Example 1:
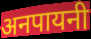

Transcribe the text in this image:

अनपायनी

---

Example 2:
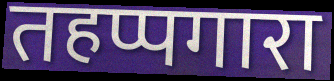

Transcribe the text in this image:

तहप्पगारा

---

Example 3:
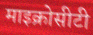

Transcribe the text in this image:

माइक्रोसीटी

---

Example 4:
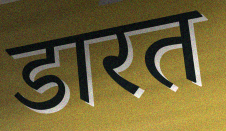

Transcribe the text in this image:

डारत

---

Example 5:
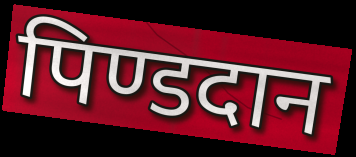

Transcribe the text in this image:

पिण्डदान